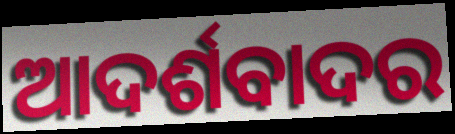
ଆଦର୍ଶବାଦର